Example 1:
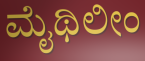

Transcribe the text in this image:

ಮೈಥಿಲೀಂ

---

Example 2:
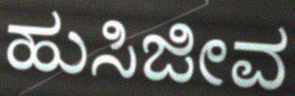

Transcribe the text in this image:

ಹುಸಿಜೀವ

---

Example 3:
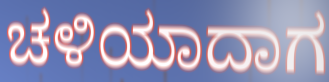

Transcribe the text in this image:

ಚಳಿಯಾದಾಗ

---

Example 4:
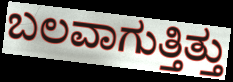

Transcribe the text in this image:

ಬಲವಾಗುತ್ತಿತ್ತು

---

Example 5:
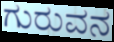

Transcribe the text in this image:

ಗುರುವನ